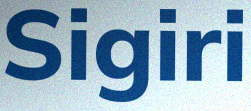
Sigiri